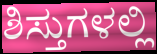
ಶಿಸ್ತುಗಳಲ್ಲಿ